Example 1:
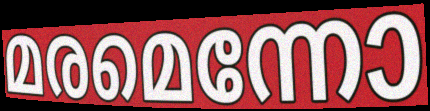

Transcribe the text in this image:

മരമെന്നോ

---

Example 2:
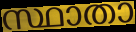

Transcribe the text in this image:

സ്ഥാതാ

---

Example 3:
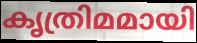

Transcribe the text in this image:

കൃത്രിമമായി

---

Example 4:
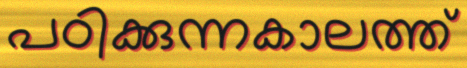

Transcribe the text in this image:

പഠിക്കുന്നകാലത്ത്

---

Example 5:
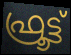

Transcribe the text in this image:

ഫ്രൂട്ട്